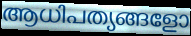
ആധിപത്യങ്ങളോ